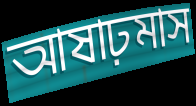
আষাঢ়মাস